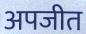
अपजीत